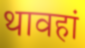
थावहां